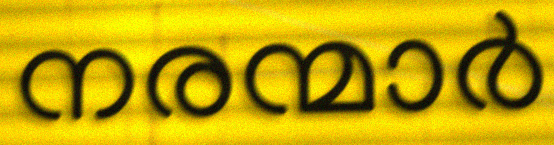
നരന്മാർ